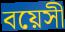
বয়েসী